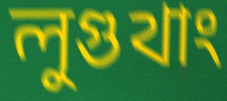
লুগুথাং